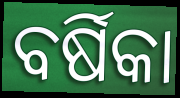
ବର୍ଷିକା